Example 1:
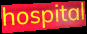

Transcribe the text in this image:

hospital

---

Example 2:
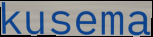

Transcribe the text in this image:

kusema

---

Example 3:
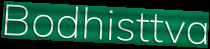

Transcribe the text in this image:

Bodhisttva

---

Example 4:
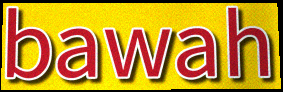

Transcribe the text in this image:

bawah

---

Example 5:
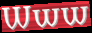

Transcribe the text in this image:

Www